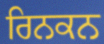
ਰਿਨਕਨ